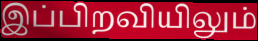
இப்பிறவியிலும்